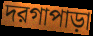
দরগাপাড়া